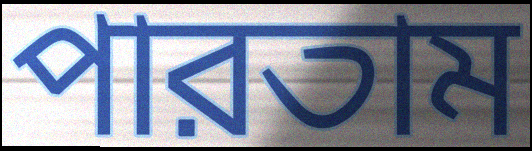
পারতাম